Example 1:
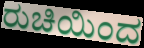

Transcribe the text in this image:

ರುಚಿಯಿಂದ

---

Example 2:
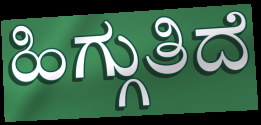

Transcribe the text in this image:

ಹಿಗ್ಗುತಿದೆ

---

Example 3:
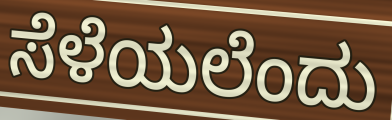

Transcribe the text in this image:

ಸೆಳೆಯಲೆಂದು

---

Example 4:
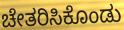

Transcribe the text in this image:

ಚೇತರಿಸಿಕೊಂಡು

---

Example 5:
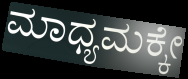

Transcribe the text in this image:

ಮಾಧ್ಯಮಕ್ಕೇ